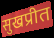
सुखप्रीत